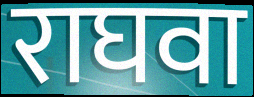
राघवा